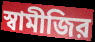
স্বামীজির